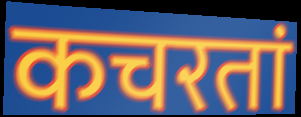
कचरतां